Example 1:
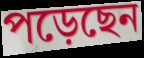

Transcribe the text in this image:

পড়েছেন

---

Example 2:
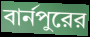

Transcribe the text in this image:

বার্নপুরের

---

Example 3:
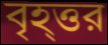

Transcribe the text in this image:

বৃহ্ত্তর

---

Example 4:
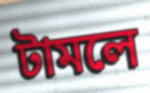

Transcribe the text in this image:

টামলে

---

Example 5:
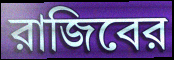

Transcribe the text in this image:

রাজিবের